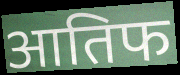
आतिफ